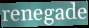
renegade